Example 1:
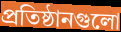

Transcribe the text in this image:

প্রতিষ্ঠানগুলো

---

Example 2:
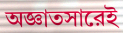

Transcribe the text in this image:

অজ্ঞাতসারেই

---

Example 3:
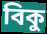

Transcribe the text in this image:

বিকু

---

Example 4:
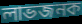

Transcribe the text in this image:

লাভজনক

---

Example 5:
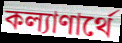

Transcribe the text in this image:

কল্যাণার্থে